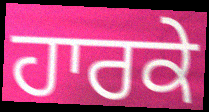
ਹਾਰਕੇ